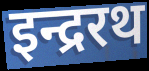
इन्द्ररथ